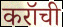
करॉची